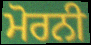
ਮੋਰਨੀ